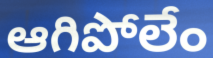
ఆగిపోలేం